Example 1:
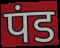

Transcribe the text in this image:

पंड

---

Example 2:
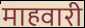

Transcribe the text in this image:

माहवारी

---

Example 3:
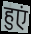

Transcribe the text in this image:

हुएं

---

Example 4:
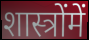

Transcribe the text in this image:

शास्त्रोंमें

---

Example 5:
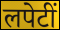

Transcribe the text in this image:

लपेटीं